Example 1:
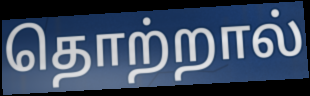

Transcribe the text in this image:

தொற்றால்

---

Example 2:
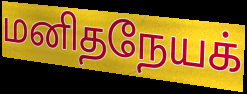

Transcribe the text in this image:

மனிதநேயக்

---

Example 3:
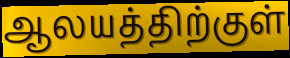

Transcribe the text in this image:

ஆலயத்திற்குள்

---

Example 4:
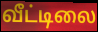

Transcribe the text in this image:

வீட்டிலை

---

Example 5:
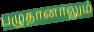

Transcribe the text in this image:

பழுதானாலும்